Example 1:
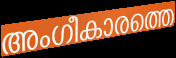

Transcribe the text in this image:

അംഗീകാരത്തെ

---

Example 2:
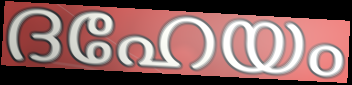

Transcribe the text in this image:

ദഹേയം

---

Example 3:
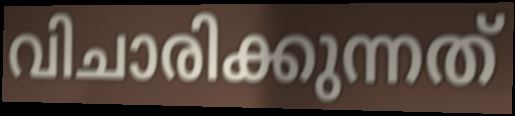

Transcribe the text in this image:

വിചാരിക്കുന്നത്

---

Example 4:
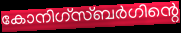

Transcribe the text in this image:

കോനിഗ്സ്ബർഗിന്റെ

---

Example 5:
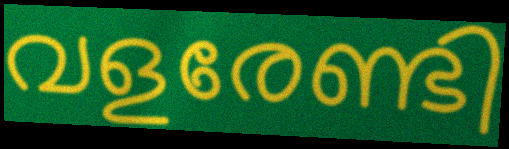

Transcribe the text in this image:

വളരേണ്ടി